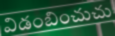
విడంబించుచు